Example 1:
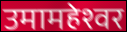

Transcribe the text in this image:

उमामहेश्वर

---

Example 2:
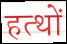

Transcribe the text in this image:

हत्थों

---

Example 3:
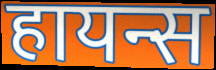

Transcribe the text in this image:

हायन्स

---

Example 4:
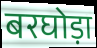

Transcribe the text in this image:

बरघोड़ा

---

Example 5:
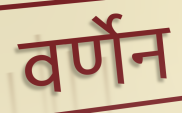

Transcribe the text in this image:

वर्णेन